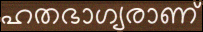
ഹതഭാഗ്യരാണ്